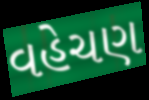
વહેચણ